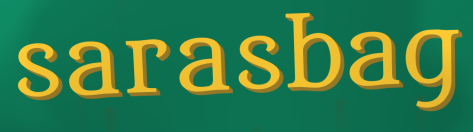
sarasbag